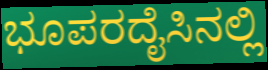
ಭೂಪರದೈಸಿನಲ್ಲಿ